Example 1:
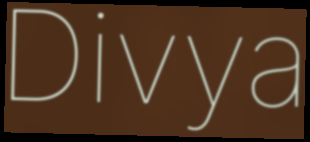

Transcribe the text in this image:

Divya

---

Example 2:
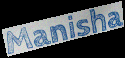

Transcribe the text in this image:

Manisha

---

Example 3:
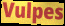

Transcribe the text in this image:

Vulpes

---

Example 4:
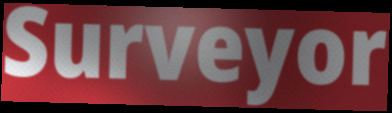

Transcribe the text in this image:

Surveyor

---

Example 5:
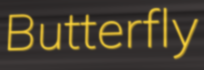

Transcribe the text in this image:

Butterfly